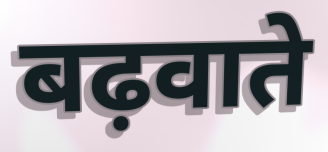
बढ़वाते